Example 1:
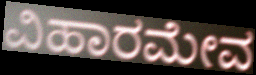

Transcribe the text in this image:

ವಿಹಾರಮೇವ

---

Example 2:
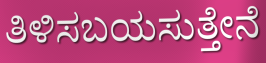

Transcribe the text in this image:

ತಿಳಿಸಬಯಸುತ್ತೇನೆ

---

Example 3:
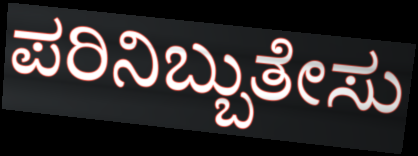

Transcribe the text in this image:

ಪರಿನಿಬ್ಬುತೇಸು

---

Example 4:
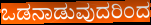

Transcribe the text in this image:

ಒಡನಾಡುವುದರಿಂದ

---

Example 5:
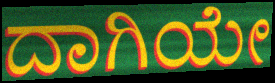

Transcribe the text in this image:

ದಾಗಿಯೇ